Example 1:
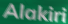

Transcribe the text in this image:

Alakiri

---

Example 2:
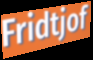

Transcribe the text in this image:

Fridtjof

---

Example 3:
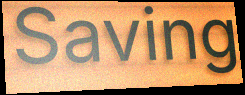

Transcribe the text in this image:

Saving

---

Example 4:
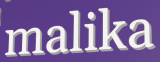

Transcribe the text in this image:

malika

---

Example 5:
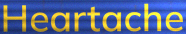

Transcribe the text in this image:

Heartache